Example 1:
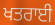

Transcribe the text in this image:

ਖਤਰਾਈ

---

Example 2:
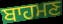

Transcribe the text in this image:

ਬਾਹਮਣ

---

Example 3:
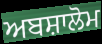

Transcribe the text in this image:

ਅਬਸ਼ਾਲੋਮ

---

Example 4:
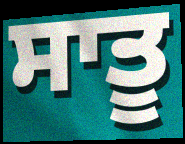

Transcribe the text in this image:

ਸਾਤੂ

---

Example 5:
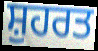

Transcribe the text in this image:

ਸ਼ੁਹਰਤ